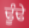
ਢੂੰਢੇ